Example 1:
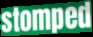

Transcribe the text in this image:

stomped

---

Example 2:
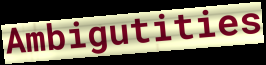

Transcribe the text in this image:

Ambigutities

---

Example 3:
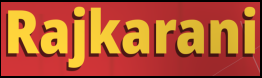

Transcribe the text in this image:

Rajkarani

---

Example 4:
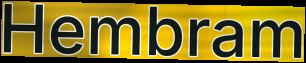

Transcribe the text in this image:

Hembram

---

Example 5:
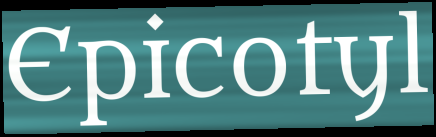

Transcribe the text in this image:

Epicotyl